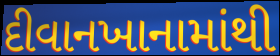
દીવાનખાનામાંથી